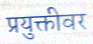
प्रयुक्तीवर